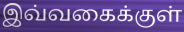
இவ்வகைக்குள்